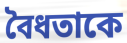
বৈধতাকে